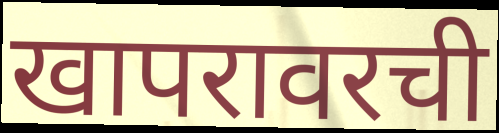
खापरावरची